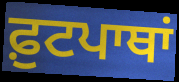
ਫ਼ੁਟਪਾਥਾਂ